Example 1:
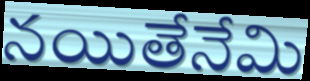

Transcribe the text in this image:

నయితేనేమి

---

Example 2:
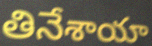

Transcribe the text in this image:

తినేశాయా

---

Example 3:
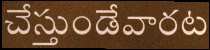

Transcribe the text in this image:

చేస్తుండేవారట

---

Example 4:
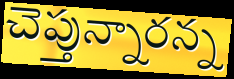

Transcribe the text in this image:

చెప్తున్నారన్న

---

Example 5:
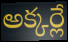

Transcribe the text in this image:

అక్కర్లే